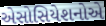
એસોસિયેશનોએ